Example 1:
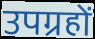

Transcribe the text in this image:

उपग्रहों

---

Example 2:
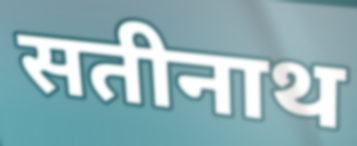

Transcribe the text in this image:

सतीनाथ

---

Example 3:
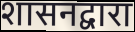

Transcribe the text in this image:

शासनद्वारा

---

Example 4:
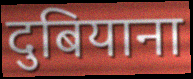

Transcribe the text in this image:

दुबियाना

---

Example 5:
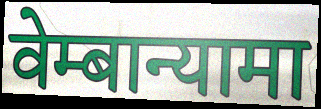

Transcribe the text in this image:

वेम्बान्यामा